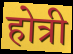
होत्री